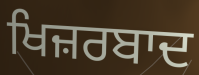
ਖਿਜ਼ਰਬਾਦ